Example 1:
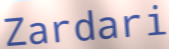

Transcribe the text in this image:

Zardari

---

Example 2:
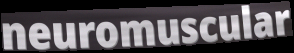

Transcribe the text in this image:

neuromuscular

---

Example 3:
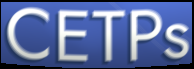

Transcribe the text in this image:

CETPs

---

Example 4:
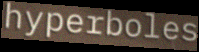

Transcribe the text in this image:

hyperboles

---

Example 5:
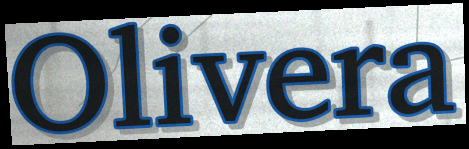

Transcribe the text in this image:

Olivera